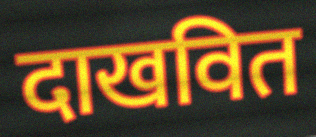
दाखवित